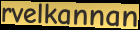
rvelkannan